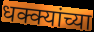
धक्क्यांच्या